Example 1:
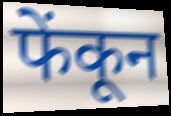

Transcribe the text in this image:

फेंकून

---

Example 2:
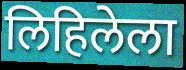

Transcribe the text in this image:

लिहिलेला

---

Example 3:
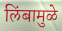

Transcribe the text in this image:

लिंबामुळे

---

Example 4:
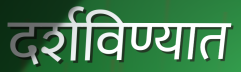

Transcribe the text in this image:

दर्शविण्यात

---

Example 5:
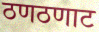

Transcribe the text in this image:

ठणठणाट